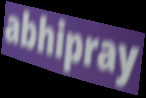
abhipray